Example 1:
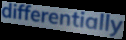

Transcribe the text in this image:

differentially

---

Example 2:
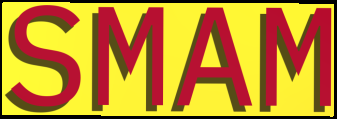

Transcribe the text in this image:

SMAM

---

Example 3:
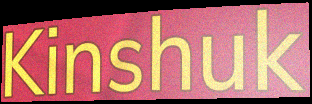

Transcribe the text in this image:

Kinshuk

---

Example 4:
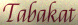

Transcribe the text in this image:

Tabakat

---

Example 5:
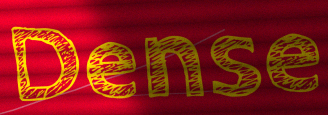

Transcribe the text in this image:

Dense